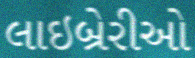
લાઇબ્રેરીઓ